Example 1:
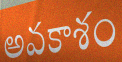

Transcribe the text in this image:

అవకాశం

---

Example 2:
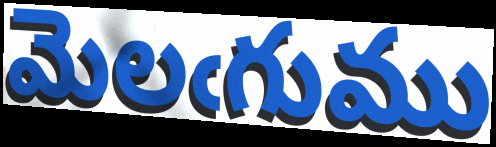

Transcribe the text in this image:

మెలఁగుము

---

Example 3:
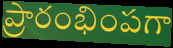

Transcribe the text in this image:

ప్రారంభింపగా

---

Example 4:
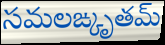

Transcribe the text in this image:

సమలఙ్కృతమ్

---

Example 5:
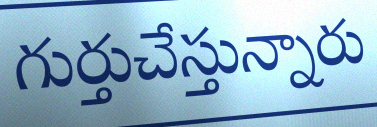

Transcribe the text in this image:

గుర్తుచేస్తున్నారు